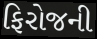
ફિરોજની